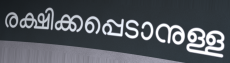
രക്ഷിക്കപ്പെടാനുള്ള